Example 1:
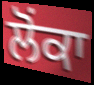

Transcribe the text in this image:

ਲੋਂਕਾ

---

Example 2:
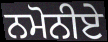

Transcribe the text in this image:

ਨਮੋਨੀਏ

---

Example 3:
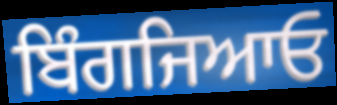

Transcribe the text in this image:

ਬਿੰਗਜਿਆਓ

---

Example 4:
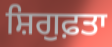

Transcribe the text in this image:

ਸ਼ਿਗੁਫ਼ਤਾ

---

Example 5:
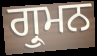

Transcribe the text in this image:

ਗ੍ਰੁਮਨ